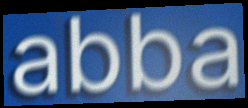
abba